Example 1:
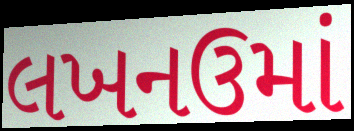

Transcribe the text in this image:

લખનઉમાં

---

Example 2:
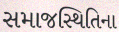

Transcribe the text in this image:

સમાજસ્થિતિના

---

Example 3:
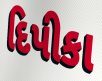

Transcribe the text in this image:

દિપીકા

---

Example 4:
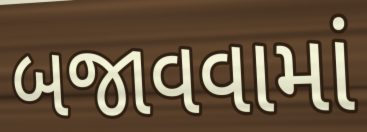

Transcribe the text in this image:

બજાવવામાં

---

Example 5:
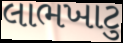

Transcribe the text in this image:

લાભખાટુ